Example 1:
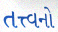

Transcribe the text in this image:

તત્ત્વનો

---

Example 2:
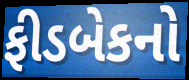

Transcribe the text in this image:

ફીડબેકનો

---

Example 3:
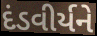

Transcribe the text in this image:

દંડવીર્યને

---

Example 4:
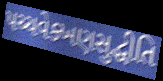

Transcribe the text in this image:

પચ્ચવેક્ખણસુદ્ધીતિ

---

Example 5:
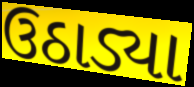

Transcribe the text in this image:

ઉઠાડ્યા